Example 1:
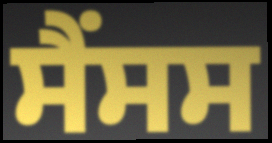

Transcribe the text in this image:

ਸੈਂਸਸ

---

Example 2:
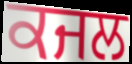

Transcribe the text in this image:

ਕਜਲ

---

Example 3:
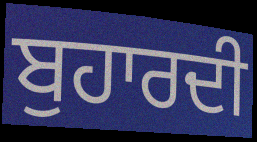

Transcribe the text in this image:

ਬੁਹਾਰਦੀ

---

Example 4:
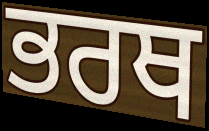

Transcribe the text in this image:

ਭਰਥ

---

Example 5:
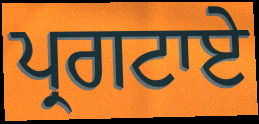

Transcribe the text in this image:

ਪ੍ਰਗਟਾਏ